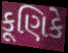
કૂણિકે